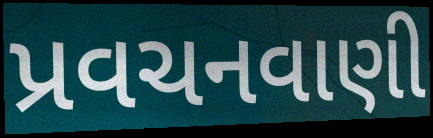
પ્રવચનવાણી